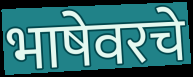
भाषेवरचे